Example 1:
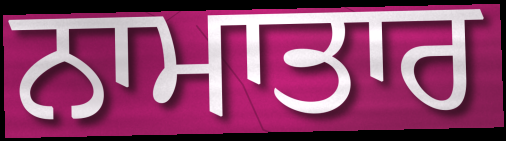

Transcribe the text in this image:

ਨਾਮਾਤਾਰ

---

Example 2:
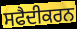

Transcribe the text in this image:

ਸਫੈਦੀਕਰਨ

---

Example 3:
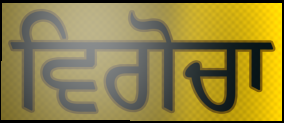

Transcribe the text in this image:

ਵਿਗੋਚਾ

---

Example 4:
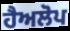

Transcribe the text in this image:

ਹੈਅਲੋਪ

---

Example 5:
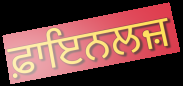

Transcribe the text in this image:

ਫ਼ਾਇਨਲਜ਼